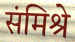
संमिश्रे